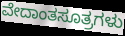
ವೇದಾಂತಸೂತ್ರಗಳು